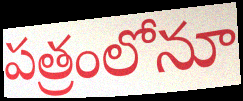
పత్రంలోనూ